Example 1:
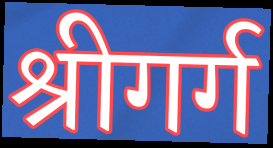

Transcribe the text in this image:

श्रीगर्ग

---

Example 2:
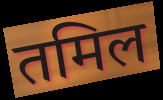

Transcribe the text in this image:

तमिल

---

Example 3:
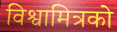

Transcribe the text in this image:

विश्वामित्रको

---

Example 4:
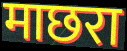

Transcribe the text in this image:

माछरा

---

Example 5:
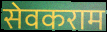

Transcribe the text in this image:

सेवकराम